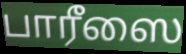
பாரீஸை